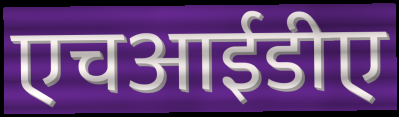
एचआईडीए